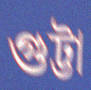
গুট্টা